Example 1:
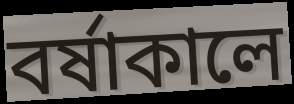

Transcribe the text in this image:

বর্ষাকালে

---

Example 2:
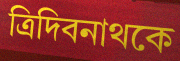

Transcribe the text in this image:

ত্রিদিবনাথকে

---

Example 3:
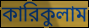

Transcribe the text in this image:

কারিকুলাম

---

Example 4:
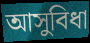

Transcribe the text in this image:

আসুবিধা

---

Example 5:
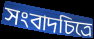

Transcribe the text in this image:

সংবাদচিত্রে